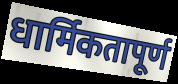
धार्मिकतापूर्ण